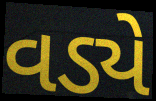
વડ્યે